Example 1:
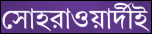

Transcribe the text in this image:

সোহরাওয়ার্দীই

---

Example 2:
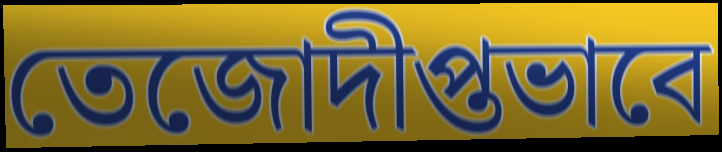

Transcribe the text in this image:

তেজোদীপ্তভাবে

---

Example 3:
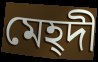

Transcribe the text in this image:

মেহ্দী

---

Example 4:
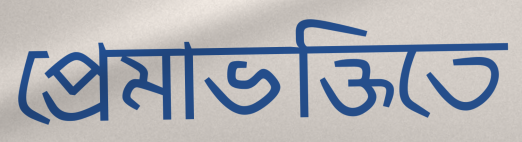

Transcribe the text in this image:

প্রেমাভক্তিতে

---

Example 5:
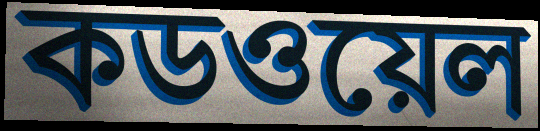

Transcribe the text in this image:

কডওয়েল